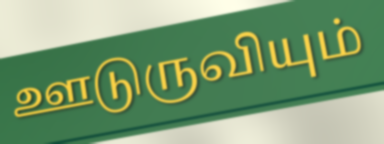
ஊடுருவியும்